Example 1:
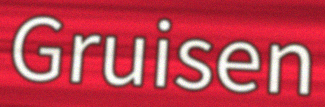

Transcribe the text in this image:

Gruisen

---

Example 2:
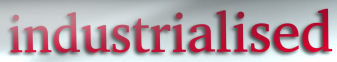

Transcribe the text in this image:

industrialised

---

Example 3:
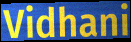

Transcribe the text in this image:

Vidhani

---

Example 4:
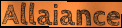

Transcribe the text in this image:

Allaiance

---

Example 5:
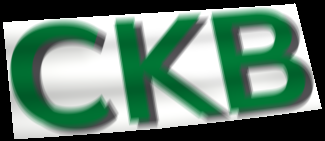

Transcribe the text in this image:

CKB